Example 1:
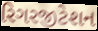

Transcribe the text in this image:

રિગરજીટેશન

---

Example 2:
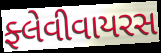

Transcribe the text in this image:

ફ્લેવીવાયરસ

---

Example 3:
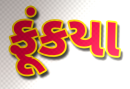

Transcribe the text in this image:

ફૂંકયા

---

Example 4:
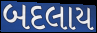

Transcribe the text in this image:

બદલાય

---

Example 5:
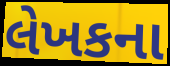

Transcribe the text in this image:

લેખકના